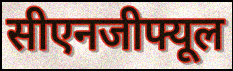
सीएनजीफ्यूल